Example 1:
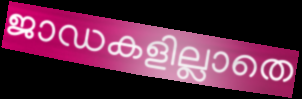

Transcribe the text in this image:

ജാഡകളില്ലാതെ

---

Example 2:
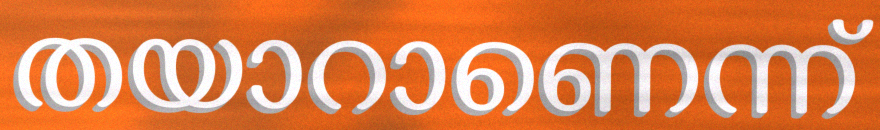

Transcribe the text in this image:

തയാറാണെന്ന്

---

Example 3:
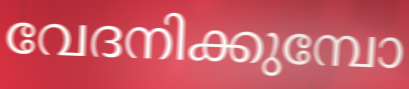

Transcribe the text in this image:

വേദനിക്കുമ്പോ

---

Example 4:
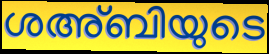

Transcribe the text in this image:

ശഅ്ബിയുടെ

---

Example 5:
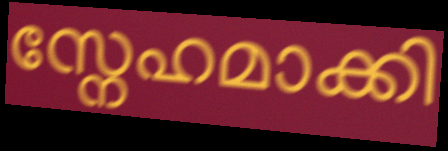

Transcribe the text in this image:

സ്നേഹമാക്കി